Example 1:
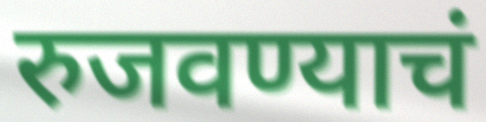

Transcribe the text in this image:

रुजवण्याचं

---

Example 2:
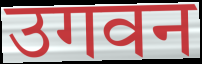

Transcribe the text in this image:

उगवन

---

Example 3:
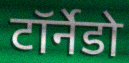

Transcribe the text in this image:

टॉर्नेडो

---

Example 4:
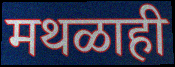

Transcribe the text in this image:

मथळाही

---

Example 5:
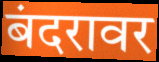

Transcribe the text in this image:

बंदरावर